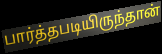
பார்த்தபடியிருந்தான்